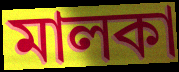
মালকা